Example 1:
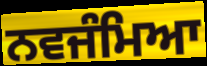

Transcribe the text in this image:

ਨਵਜੰਮਿਆ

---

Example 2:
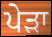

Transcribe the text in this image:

ਪੇੜਾ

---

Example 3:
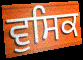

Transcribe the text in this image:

ਵੁਸਿਕ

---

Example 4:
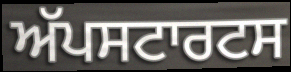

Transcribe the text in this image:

ਅੱਪਸਟਾਰਟਸ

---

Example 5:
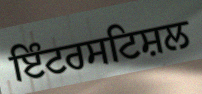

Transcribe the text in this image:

ਇੰਟਰਸਟਿਸ਼ਲ